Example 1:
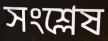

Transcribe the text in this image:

সংশ্লেষ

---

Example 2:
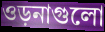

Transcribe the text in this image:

ওড়নাগুলো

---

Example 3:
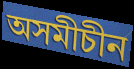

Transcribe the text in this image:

অসমীচীন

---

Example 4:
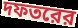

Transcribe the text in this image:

দফতরের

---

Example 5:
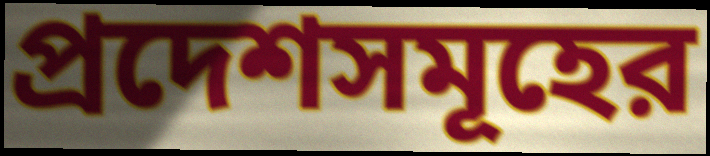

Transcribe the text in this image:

প্রদেশসমূহের